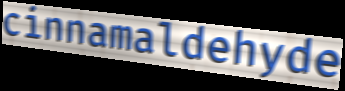
cinnamaldehyde